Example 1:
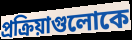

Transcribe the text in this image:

প্রক্রিয়াগুলোকে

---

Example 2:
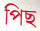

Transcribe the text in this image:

পিছ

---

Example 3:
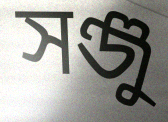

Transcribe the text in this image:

সঞ্জু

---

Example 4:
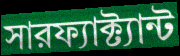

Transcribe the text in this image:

সারফ্যাক্ট্যান্ট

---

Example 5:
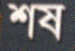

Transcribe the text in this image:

শষ